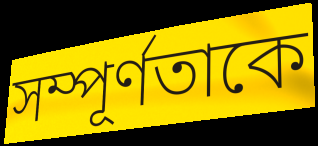
সম্পূর্ণতাকে